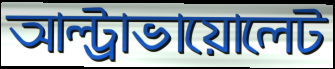
আল্ট্রাভায়োলেট